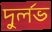
দুর্লভ